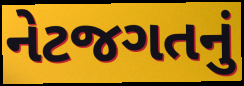
નેટજગતનું